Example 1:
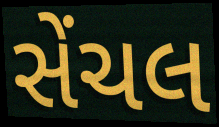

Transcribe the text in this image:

સેંચલ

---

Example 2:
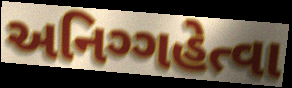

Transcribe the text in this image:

અનિગ્ગહેત્વા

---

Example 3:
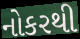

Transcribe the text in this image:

નોકરથી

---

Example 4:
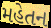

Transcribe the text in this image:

મહેતન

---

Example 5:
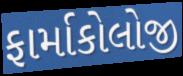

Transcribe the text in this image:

ફાર્માકોલોજી